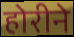
होरीने